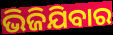
ଭିଜିଯିବାର